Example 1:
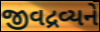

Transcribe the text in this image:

જીવદ્રવ્યને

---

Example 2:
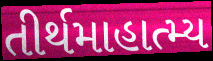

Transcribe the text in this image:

તીર્થમાહાત્મ્ય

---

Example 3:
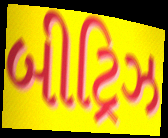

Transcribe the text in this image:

બીટ્રિઝ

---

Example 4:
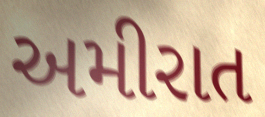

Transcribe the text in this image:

અમીરાત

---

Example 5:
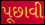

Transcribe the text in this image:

પૂછાવી